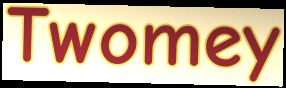
Twomey